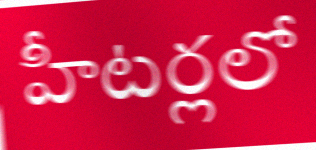
హీటర్లలో